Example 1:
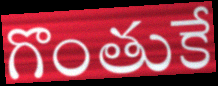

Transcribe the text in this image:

గొంతుకే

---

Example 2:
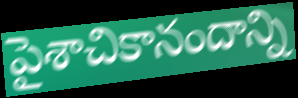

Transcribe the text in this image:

పైశాచికానందాన్ని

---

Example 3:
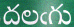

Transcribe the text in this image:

దలఁగు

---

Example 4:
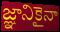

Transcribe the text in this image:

జ్ఞానికైనా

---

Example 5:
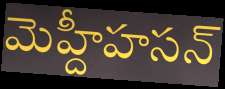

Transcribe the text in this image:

మెహ్దీహసన్